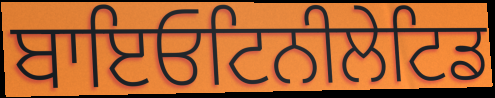
ਬਾਇਓਟਿਨੀਲੇਟਿਡ